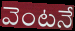
వెంటనే